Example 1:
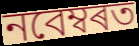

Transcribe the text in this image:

নবেম্বৰত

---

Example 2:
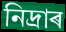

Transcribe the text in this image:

নিদ্ৰাৰ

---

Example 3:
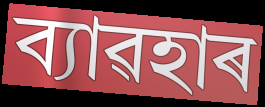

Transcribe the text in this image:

ব্যাৱহাৰ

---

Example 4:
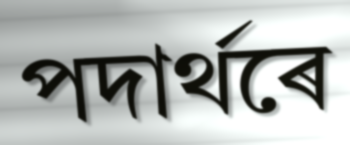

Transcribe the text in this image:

পদাৰ্থৰে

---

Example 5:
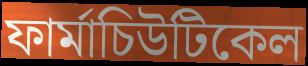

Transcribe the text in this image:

ফাৰ্মাচিউটিকেল